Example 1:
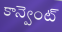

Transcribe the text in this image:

కాన్వెంట్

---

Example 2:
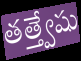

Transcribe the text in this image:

తత్త్వేషు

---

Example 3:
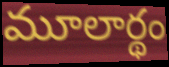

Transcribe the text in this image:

మూలార్థం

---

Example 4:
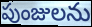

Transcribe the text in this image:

పుంజులను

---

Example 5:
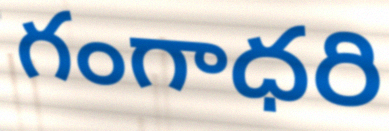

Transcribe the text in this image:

గంగాధరి